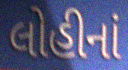
લોહીનાં